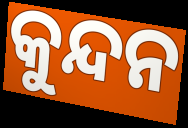
କୁନ୍ଦନ